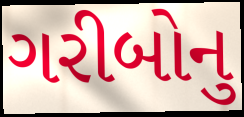
ગરીબોનુ